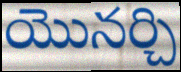
యొనర్చి